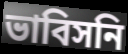
ভাবিসনি